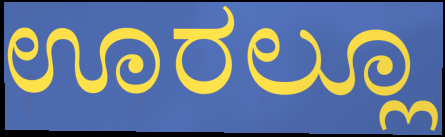
ಊರಲ್ಲೂ